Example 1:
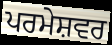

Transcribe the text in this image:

ਪਰਮੇਸ਼ਵਰ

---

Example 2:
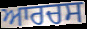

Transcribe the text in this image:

ਆਰਚਸ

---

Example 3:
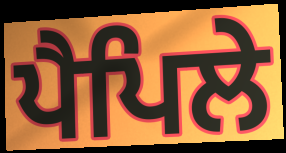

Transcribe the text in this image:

ਪੈਪਿਲੇ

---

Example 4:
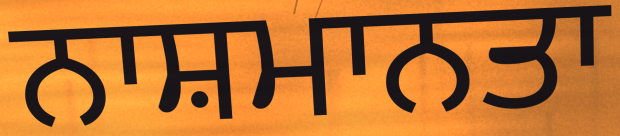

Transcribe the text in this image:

ਨਾਸ਼ਮਾਨਤਾ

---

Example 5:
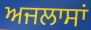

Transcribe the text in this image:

ਅਜਲਾਸਾਂ